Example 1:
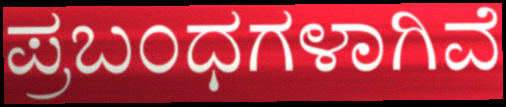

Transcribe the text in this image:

ಪ್ರಬಂಧಗಳಾಗಿವೆ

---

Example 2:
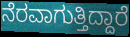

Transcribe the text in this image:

ನೆರವಾಗುತ್ತಿದ್ದಾರೆ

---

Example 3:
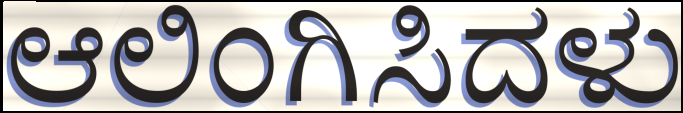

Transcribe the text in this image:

ಆಲಿಂಗಿಸಿದಳು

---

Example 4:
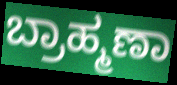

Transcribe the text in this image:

ಬ್ರಾಹ್ಮಣಾ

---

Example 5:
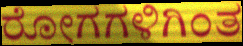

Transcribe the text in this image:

ರೋಗಗಳಿಗಿಂತ